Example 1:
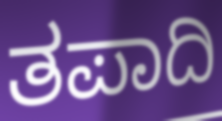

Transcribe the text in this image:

ತಪಾದಿ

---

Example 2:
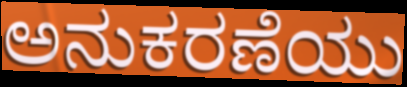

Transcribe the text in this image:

ಅನುಕರಣೆಯು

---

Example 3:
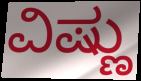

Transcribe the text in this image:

ವಿಷ್ಣು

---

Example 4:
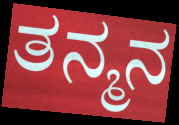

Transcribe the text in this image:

ತನ್ಮನ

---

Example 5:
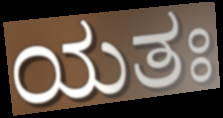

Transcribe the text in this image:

ಯತಃ